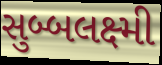
સુબ્બલક્ષ્મી